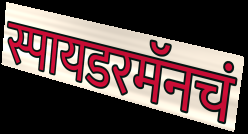
स्पायडरमॅनचं